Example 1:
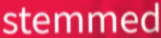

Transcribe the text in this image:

stemmed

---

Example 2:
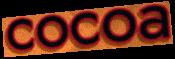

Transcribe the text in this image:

cocoa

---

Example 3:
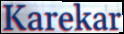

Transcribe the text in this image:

Karekar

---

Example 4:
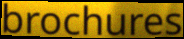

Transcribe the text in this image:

brochures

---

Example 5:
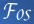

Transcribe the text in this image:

Fos